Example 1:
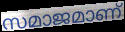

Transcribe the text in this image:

സമാജമാണ്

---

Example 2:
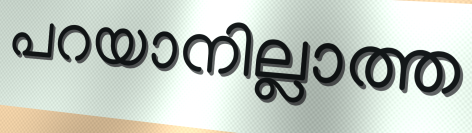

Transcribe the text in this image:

പറയാനില്ലാത്ത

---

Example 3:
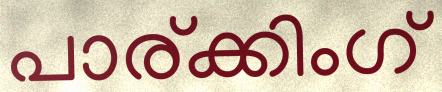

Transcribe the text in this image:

പാര്ക്കിംഗ്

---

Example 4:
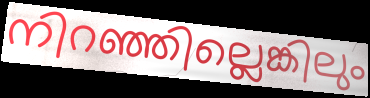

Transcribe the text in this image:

നിറഞ്ഞില്ലെങ്കിലും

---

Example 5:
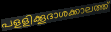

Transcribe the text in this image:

പളളിക്കൂദാശക്കാലത്ത്